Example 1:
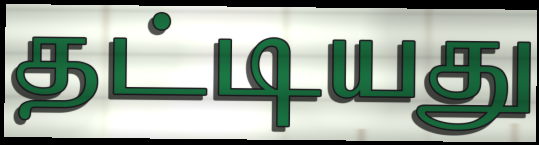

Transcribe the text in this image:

தட்டியது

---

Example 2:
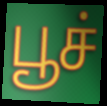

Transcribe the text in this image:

பூச்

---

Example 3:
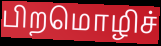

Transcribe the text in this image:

பிறமொழிச்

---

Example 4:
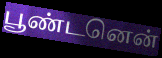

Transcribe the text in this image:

பூண்டனென்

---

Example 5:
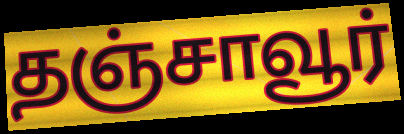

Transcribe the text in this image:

தஞ்சாவூர்